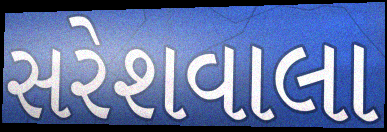
સરેશવાલા